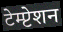
टेम्प्टेशन